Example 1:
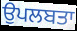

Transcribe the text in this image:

ਉਪਲਬਤਾ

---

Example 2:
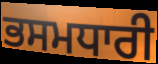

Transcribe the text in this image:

ਭਸਮਧਾਰੀ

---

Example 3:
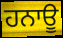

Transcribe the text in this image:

ਹਨਾਊ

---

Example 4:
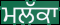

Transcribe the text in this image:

ਮਲੱਕਾ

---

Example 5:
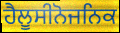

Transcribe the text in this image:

ਹੈਲੂਸੀਨੋਜਨਿਕ